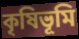
কৃষিভূমি